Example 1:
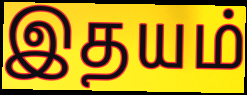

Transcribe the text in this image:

இதயம்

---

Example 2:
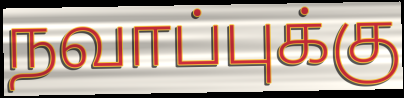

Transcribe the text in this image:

நவாப்புக்கு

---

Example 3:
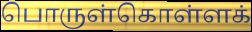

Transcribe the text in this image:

பொருள்கொள்ளக்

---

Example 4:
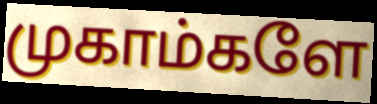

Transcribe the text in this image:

முகாம்களே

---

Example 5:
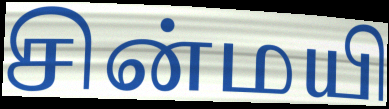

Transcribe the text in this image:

சின்மயி